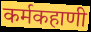
कर्मकहाणी